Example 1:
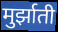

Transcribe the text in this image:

मुर्झाती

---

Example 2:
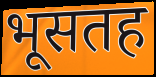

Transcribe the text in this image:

भूसतह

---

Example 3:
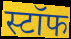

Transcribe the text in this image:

स्टॉफ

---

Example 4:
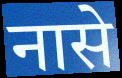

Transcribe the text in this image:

नासे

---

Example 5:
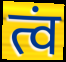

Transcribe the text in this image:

त्वं